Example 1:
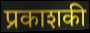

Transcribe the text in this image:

प्रकाशकी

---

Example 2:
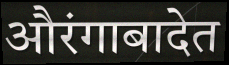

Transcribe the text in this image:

औरंगाबादेत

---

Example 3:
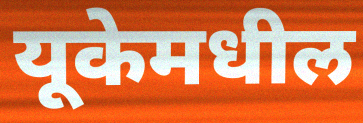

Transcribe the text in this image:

यूकेमधील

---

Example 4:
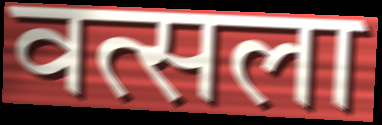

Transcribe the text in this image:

वत्सला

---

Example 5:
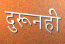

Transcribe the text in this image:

दुरूनही